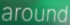
around